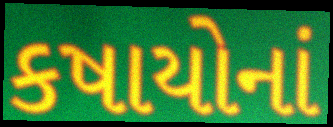
કષાયોનાં